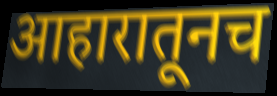
आहारातूनच